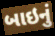
બાઇનું